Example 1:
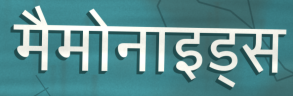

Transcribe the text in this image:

मैमोनाइड्स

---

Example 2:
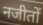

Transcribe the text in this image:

नजीतों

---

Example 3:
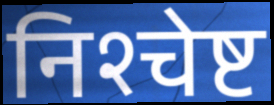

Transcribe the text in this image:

निश्चेष्ट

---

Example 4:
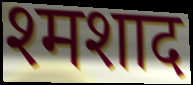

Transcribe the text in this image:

श्मशाद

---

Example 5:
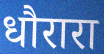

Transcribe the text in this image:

धौरारा